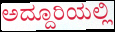
ಅದ್ದೂರಿಯಲ್ಲಿ